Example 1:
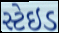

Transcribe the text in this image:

સ્ટેઇડ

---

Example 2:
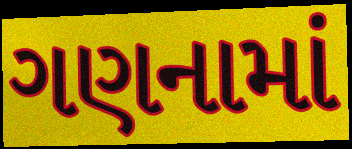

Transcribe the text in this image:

ગણનામાં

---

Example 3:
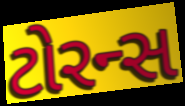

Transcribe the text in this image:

ટોરન્સ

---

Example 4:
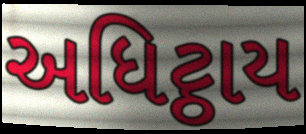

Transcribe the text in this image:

અધિટ્ઠાય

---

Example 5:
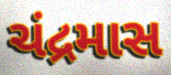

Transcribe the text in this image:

ચંદ્રમાસ